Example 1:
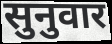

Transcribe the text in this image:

सुनुवार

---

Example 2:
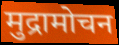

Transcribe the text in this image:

मुद्रामोचन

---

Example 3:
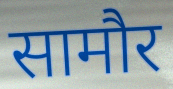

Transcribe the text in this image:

सामौर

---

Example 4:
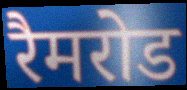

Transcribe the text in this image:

रैमरोड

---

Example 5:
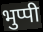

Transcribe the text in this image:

भुप्पी